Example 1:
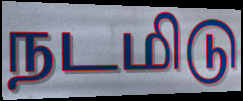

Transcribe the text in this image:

நடமிடு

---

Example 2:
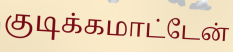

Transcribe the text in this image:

குடிக்கமாட்டேன்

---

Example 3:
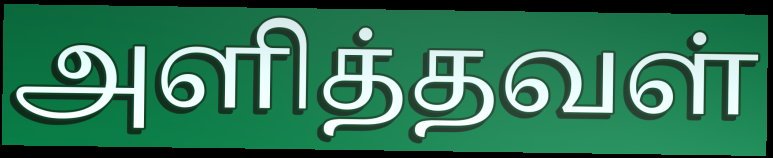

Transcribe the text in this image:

அளித்தவள்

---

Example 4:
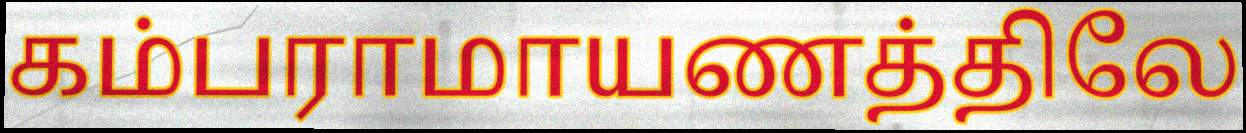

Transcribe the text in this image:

கம்பராமாயணத்திலே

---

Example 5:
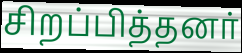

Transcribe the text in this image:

சிறப்பித்தனர்